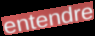
entendre